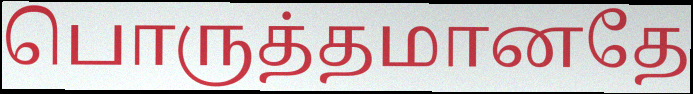
பொருத்தமானதே